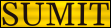
SUMIT